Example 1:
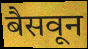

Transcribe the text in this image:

बैसवून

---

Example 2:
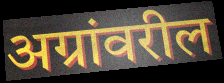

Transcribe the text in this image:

अग्रांवरील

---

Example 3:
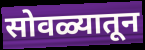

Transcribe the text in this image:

सोवळ्यातून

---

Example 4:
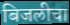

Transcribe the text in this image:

बिजलीचा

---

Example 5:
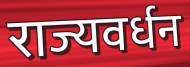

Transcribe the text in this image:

राज्यवर्धन